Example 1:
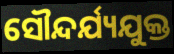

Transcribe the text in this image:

ସୌନ୍ଦର୍ଯ୍ୟଯୁକ୍ତ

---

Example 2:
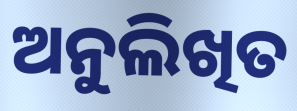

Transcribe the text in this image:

ଅନୁଲିଖିତ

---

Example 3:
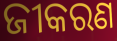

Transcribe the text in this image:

ଜୀକରଣ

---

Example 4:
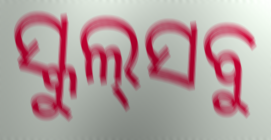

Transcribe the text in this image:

ସ୍କୁଲ୍‍ସବୁ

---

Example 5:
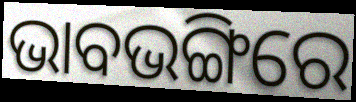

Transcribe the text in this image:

ଭାବଭଙ୍ଗିରେ